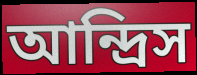
আন্দ্রিস